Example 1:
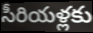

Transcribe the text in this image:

సీరియళ్లకు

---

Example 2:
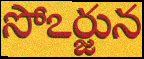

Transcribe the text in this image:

సోఽర్జున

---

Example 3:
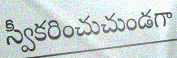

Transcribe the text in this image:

స్వీకరించుచుండగా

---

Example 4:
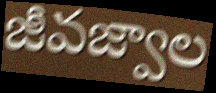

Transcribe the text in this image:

జీవజ్వాల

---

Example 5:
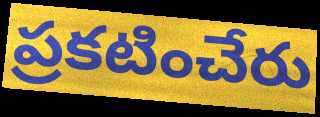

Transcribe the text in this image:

ప్రకటించేరు